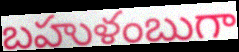
బహుళంబుగా